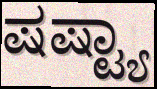
ಷಷ್ಟ್ಯಾ